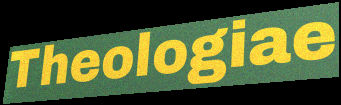
Theologiae